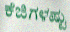
ಕೆಜಿಗಳಷ್ಟು